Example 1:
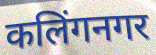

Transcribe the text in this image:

कलिंगनगर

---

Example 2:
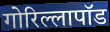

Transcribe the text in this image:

गोरिल्लापॉड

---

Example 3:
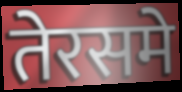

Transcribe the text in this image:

तेरसमे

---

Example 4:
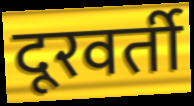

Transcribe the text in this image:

दूरवर्ती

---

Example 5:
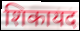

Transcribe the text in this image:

शिकायद